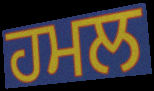
ਹਮਲ